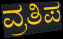
ವ್ರತಿಪ